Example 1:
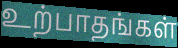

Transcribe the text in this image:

உற்பாதங்கள்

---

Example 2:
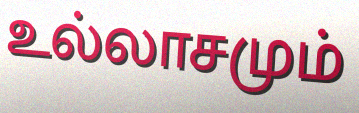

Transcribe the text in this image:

உல்லாசமும்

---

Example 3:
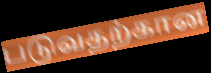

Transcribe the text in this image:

படுவதற்கான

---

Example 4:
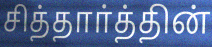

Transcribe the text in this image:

சித்தார்த்தின்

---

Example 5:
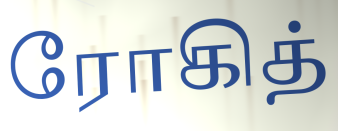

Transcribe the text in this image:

ரோகித்